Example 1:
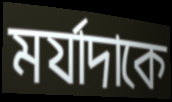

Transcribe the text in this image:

মর্যাদাকে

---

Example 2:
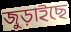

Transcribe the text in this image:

জুড়াইছে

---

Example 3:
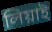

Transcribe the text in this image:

লিয়াই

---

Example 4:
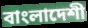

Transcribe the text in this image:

বাংলাদেশী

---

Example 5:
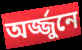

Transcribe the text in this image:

অর্জ্জুনে